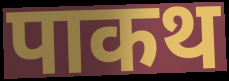
पाकथ